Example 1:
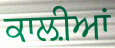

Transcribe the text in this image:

ਕਾਲ਼ੀਆਂ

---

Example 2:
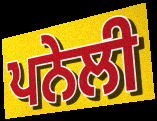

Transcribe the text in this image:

ਪਨੇਲੀ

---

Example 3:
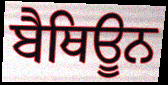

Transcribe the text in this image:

ਬੈਥਿਊਨ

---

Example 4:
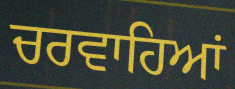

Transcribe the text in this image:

ਚਰਵਾਹਿਆਂ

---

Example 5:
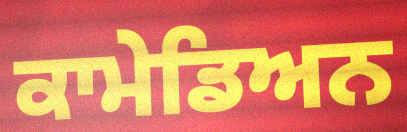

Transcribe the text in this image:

ਕਾਮੇਡਿਅਨ